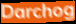
Darchog